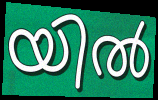
യിൽ